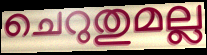
ചെറുതുമല്ല